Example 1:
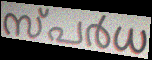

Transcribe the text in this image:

സ്പർധ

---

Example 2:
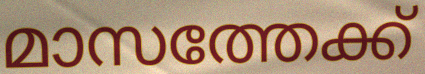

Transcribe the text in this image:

മാസത്തേക്ക്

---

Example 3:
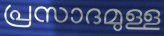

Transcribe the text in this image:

പ്രസാദമുള്ള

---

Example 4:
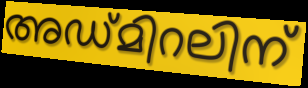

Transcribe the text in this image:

അഡ്മിറലിന്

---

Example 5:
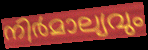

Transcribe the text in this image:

നിർമാല്യവും